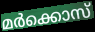
മർക്കൊസ്